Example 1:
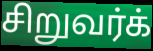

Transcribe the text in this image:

சிறுவர்க்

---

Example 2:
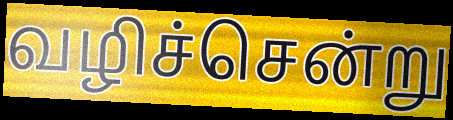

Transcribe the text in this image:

வழிச்சென்று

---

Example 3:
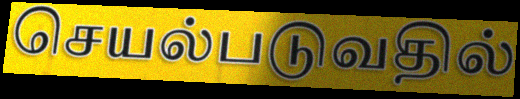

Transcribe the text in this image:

செயல்படுவதில்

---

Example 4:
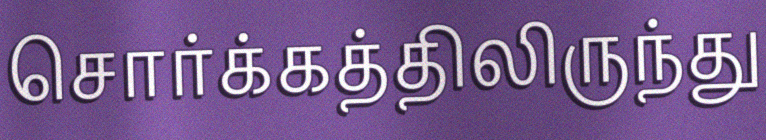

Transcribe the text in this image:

சொர்க்கத்திலிருந்து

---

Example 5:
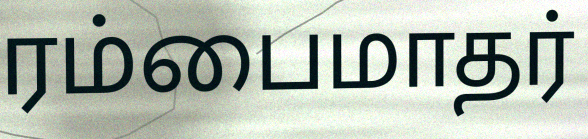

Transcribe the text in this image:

ரம்பைமாதர்